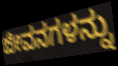
ಜೀವನಗಳನ್ನು